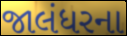
જાલંધરના